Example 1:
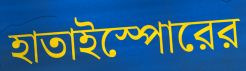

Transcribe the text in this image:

হাতাইস্পোরের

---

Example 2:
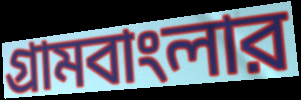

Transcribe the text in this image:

গ্রামবাংলার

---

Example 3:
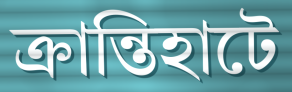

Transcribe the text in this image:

ক্রান্তিহাটে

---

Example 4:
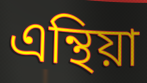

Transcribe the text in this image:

এন্থিয়া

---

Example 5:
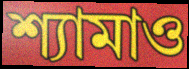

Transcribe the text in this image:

শ্যামাও